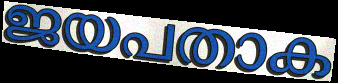
ജയപതാക